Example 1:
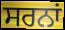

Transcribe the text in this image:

ਸਰਨਾਂ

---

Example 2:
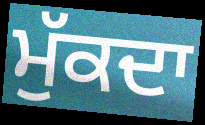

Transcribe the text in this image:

ਮੁੱਕਦਾ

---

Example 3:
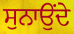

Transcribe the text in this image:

ਸੁਨਾਉਂਦੇ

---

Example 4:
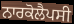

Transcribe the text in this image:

ਨਾਰਕੋਲੈਪਸੀ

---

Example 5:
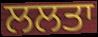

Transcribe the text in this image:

ਲਲਤਾ